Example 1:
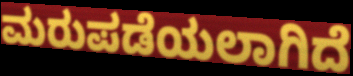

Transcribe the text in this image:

ಮರುಪಡೆಯಲಾಗಿದೆ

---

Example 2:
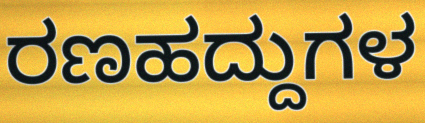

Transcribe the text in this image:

ರಣಹದ್ದುಗಳ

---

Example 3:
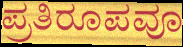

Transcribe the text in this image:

ಪ್ರತಿರೂಪವೂ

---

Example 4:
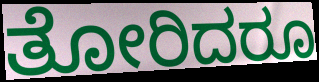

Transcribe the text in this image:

ತೋರಿದರೂ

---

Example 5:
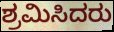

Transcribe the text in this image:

ಶ್ರಮಿಸಿದರು